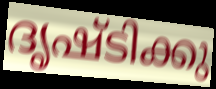
ദൃഷ്ടിക്കു